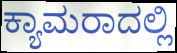
ಕ್ಯಾಮರಾದಲ್ಲಿ